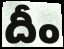
దీం